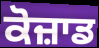
ਕੋਜ਼ਾਡ